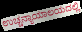
ಉಚ್ಚನ್ಯಾಯಾಲಯದಲ್ಲಿ